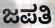
ಜಪತಿ